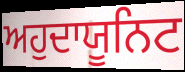
ਅਹੁਦਾਯੂਨਿਟ